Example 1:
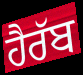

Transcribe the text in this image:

ਹੈਰੱਬ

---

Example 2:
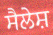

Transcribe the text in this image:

ਸੈਲੇਸ਼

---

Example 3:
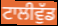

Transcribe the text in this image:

ਟਾਲੀਵੁੱਡ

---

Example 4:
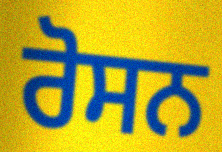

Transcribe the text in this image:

ਰੋਸਨ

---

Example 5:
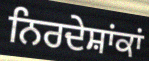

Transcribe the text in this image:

ਨਿਰਦੇਸ਼ਾਂਕਾਂ